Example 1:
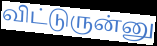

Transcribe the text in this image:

விட்டுருன்னு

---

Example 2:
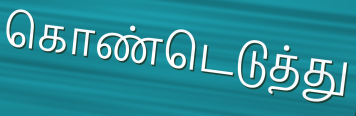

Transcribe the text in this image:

கொண்டெடுத்து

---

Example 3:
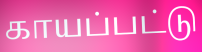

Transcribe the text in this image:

காயப்பட்டு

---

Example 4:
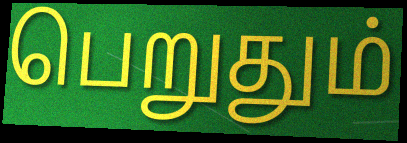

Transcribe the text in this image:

பெறுதும்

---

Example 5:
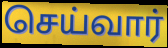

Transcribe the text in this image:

செய்வார்